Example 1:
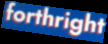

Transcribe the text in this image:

forthright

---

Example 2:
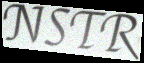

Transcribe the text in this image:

NSTR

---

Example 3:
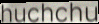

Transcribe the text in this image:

huchchu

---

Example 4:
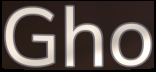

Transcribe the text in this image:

Gho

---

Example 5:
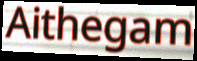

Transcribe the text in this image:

Aithegam